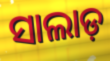
ସାଲାଡ଼